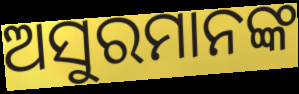
ଅସୁରମାନଙ୍କ